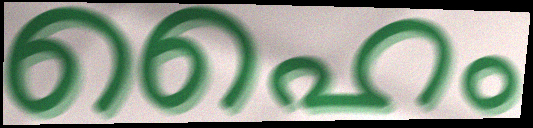
ഹൈം